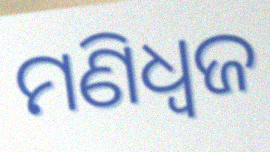
ମଣିଧ୍ୱଜ